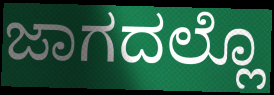
ಜಾಗದಲ್ಲೊ